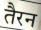
तैरन